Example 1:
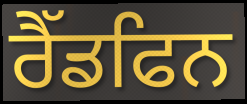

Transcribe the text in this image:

ਰੈੱਡਫਿਨ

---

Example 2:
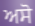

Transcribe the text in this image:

ਅਸੋ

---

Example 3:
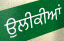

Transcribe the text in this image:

ਉਲੀਕੀਆਂ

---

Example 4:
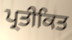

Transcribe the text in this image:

ਪ੍ਰਤੀਕਿਤ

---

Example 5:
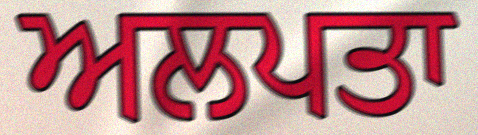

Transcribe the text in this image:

ਅਲਪਤਾ